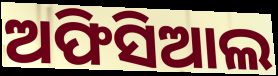
ଅଫିସିଆଲ